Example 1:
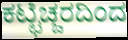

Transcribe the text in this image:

ಕಟ್ಟೆಚ್ಚರದಿಂದ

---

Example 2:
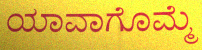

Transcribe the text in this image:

ಯಾವಾಗೊಮ್ಮೆ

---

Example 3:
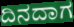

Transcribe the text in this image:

ದಿನದಾಗ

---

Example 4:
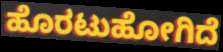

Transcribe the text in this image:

ಹೊರಟುಹೋಗಿದೆ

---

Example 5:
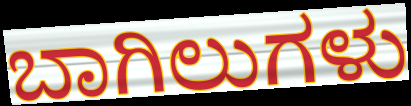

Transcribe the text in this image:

ಬಾಗಿಲುಗಳು